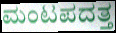
ಮಂಟಪದತ್ತ